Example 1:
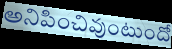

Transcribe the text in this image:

అనిపించివుంటుందో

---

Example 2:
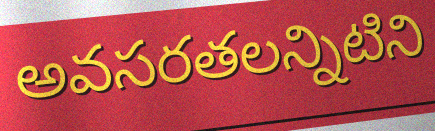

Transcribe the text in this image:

అవసరతలన్నిటిని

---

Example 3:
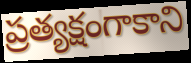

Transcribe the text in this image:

ప్రత్యక్షంగాకాని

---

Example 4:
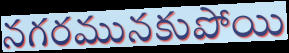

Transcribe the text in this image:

నగరమునకుపోయి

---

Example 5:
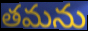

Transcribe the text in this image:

తమను